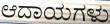
ಆದಾಯಗಳು